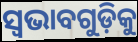
ସ୍ୱଭାବଗୁଡ଼ିକୁ